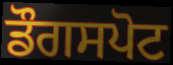
ਡੌਗਸਪੋਟ